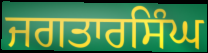
ਜਗਤਾਰਸਿੰਘ